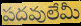
పదవులేమీ